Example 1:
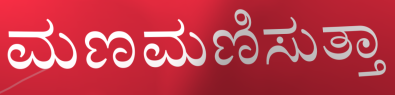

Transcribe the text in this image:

ಮಣಮಣಿಸುತ್ತಾ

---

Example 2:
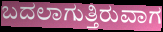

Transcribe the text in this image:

ಬದಲಾಗುತ್ತಿರುವಾಗ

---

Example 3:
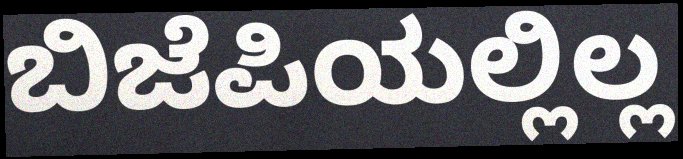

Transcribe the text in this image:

ಬಿಜೆಪಿಯಲ್ಲಿಲ್ಲ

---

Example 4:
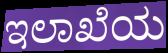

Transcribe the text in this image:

ಇಲಾಖೆಯ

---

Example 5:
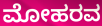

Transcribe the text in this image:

ಮೋಹರವ